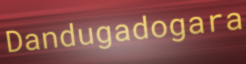
Dandugadogara